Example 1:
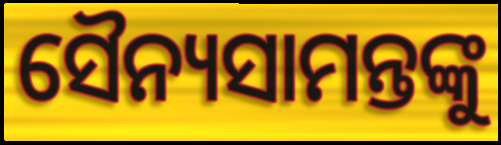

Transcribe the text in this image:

ସୈନ୍ୟସାମନ୍ତଙ୍କୁ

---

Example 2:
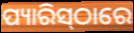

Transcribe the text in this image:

ପ୍ୟାରିସ୍‍ଠାରେ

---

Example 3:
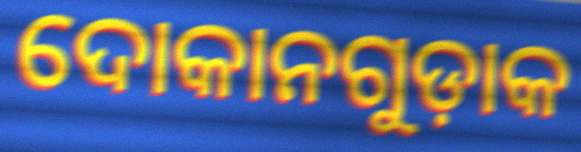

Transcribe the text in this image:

ଦୋକାନଗୁଡ଼ାକ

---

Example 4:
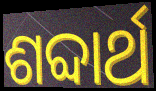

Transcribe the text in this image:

ଶବ୍ଦାର୍ଥ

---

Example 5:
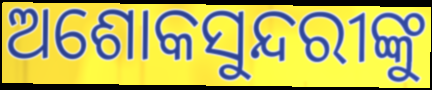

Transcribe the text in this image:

ଅଶୋକସୁନ୍ଦରୀଙ୍କୁ